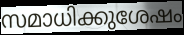
സമാധിക്കുശേഷം